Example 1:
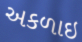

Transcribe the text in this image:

અકળાઇ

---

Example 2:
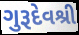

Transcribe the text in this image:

ગુરૂદેવશ્રી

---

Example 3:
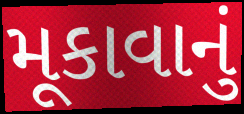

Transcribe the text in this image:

મૂકાવાનું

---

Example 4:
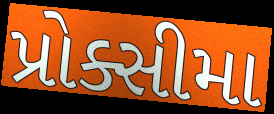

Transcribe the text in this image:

પ્રોક્સીમા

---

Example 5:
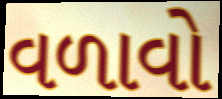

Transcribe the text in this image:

વળાવો